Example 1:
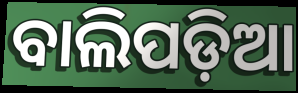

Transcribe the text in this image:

ବାଲିପଡ଼ିଆ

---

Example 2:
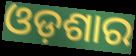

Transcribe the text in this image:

ଓଡ଼ଶାର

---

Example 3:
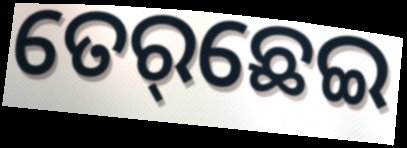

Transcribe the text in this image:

ତେର୍‌ଛେଇ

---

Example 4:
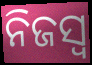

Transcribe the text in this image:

ନିଜସ୍ଵ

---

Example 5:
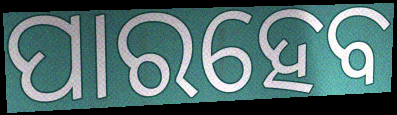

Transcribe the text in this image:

ପାରହେବ